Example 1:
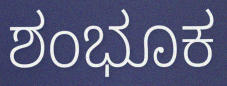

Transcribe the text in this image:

ಶಂಭೂಕ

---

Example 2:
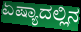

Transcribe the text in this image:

ಏಷ್ಯಾದಲ್ಲಿನ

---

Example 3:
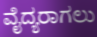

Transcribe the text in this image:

ವೈದ್ಯರಾಗಲು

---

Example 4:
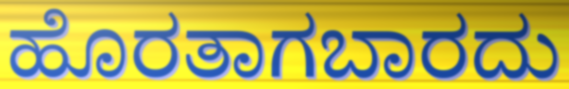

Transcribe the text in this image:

ಹೊರತಾಗಬಾರದು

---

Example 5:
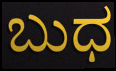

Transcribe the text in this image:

ಬುಧ